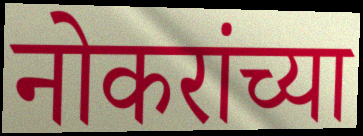
नोकरांच्या